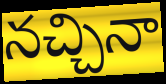
నచ్చినా